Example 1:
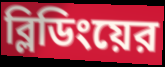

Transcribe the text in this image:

ব্লিডিংয়ের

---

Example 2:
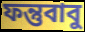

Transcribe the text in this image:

ফন্তুবাবু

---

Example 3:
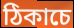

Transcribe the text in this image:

ঠিকাচে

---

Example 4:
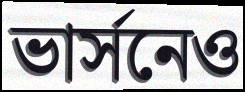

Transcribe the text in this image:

ভার্সনেও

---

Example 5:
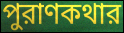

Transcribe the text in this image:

পুরাণকথার